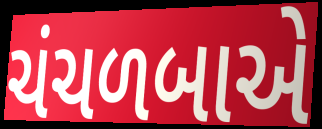
ચંચળબાએ